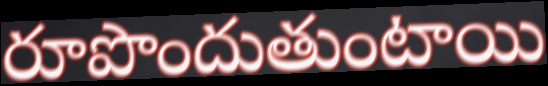
రూపొందుతుంటాయి